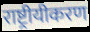
राष्ट्रीयीकरण